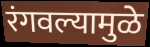
रंगवल्यामुळे